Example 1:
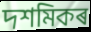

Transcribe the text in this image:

দশমিকৰ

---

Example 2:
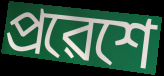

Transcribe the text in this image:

প্ৰৱেশে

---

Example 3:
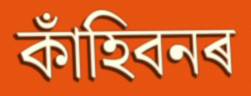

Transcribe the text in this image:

কাঁহিবনৰ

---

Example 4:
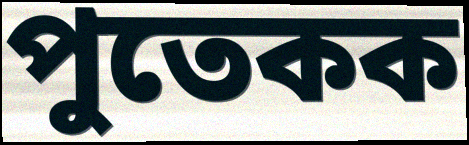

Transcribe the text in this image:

পুতেকক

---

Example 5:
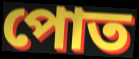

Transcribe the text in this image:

পোত